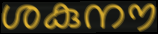
ശകുനൗ